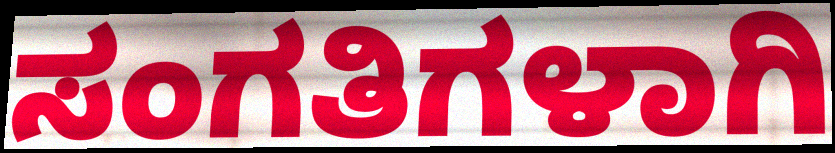
ಸಂಗತಿಗಳಾಗಿ